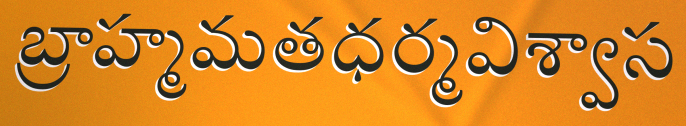
బ్రాహ్మమతధర్మవిశ్వాస